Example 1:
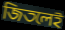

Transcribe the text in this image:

জিতলেই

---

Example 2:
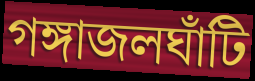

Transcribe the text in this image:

গঙ্গাজলঘাঁটি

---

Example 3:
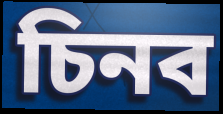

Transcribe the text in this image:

চিনব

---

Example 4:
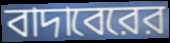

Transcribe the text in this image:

বাদাবেরের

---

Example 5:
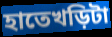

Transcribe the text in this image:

হাতেখড়িটা